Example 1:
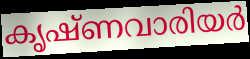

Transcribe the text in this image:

കൃഷ്ണവാരിയർ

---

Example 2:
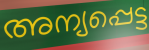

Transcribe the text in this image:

അന്യപ്പെട്ട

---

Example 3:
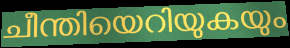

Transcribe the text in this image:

ചീന്തിയെറിയുകയും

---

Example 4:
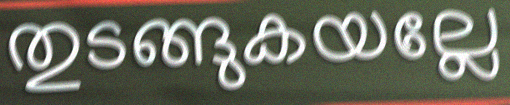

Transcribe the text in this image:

തുടങ്ങുകയല്ലേ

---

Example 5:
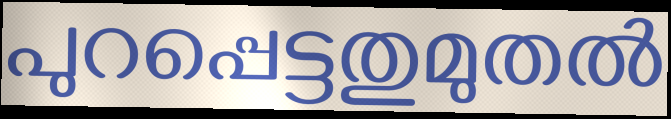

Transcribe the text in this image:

പുറപ്പെട്ടതുമുതൽ